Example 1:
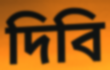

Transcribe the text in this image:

দিবি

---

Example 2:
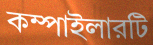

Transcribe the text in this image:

কম্পাইলারটি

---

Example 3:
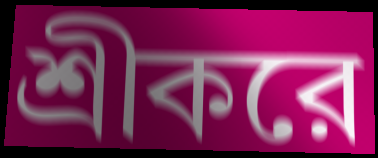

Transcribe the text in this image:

শ্রীকরে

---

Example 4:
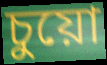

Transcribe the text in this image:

চুয়ো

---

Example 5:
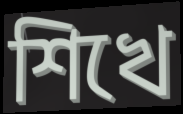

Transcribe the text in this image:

শিখে